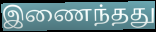
இணைந்தது